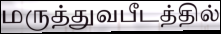
மருத்துவபீடத்தில்